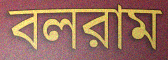
বলরাম